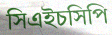
সিএইচসিপি